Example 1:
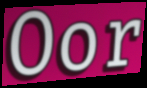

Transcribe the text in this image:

Oor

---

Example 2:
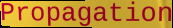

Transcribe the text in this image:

Propagation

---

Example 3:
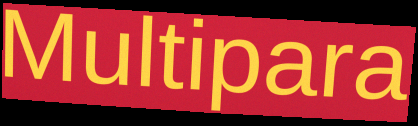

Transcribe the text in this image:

Multipara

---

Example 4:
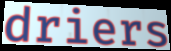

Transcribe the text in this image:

driers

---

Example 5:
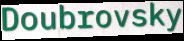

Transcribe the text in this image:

Doubrovsky